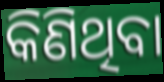
କିଣିଥିବା